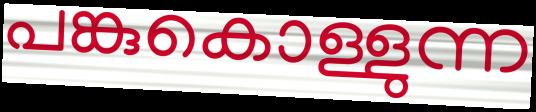
പങ്കുകൊള്ളുന്ന